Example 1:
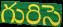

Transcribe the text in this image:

గురిసె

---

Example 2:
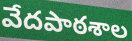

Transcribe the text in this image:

వేదపాఠశాల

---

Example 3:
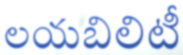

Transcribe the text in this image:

లయబిలిటీ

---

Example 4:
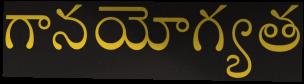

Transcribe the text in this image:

గానయోగ్యత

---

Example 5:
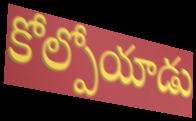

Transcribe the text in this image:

కోల్పోయాడు